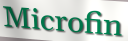
Microfin